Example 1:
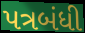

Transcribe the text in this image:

પત્રબંધી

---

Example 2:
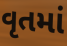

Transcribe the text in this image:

વૃતમાં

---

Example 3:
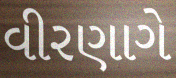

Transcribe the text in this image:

વીરણાગે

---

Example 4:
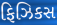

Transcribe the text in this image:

ફિઝિકસ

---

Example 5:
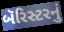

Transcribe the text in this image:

બૅરિસ્ટરનું